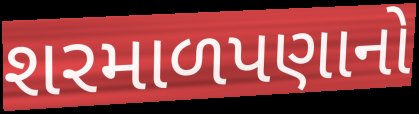
શરમાળપણાનો